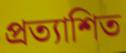
প্ৰত্যাশিত